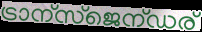
ട്രാന്സ്ജെന്ഡര്